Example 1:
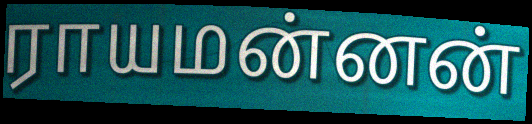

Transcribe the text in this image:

ராயமன்னன்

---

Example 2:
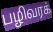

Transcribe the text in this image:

பழிவரக்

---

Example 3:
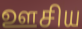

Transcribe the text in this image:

ஊசிய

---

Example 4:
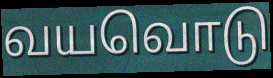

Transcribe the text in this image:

வயவொடு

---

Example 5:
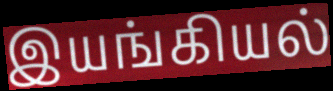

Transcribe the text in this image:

இயங்கியல்